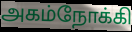
அகம்நோக்கி